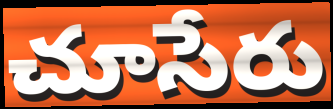
చూసేరు